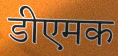
डीएमक